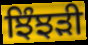
ਝਿੰਝੜੀ